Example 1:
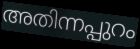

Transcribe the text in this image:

അതിന്നപ്പുറം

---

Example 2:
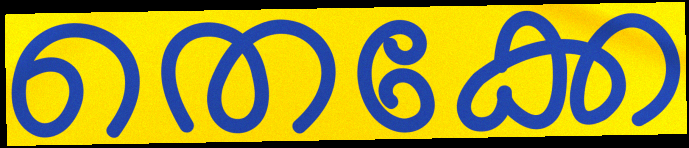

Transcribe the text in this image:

തെക്കേ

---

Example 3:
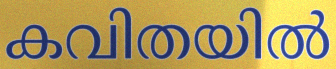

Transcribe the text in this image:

കവിതയിൽ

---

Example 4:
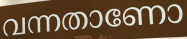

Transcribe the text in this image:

വന്നതാണോ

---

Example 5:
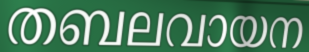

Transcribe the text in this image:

തബലവായന